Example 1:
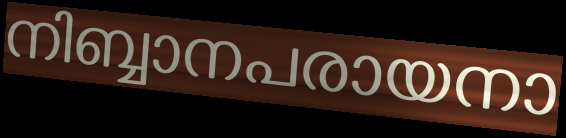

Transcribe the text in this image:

നിബ്ബാനപരായനാ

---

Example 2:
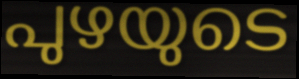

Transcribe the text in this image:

പുഴയുടെ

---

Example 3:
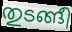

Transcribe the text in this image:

തുടങ്ങീ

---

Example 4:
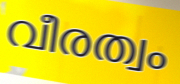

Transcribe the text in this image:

വീരത്വം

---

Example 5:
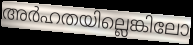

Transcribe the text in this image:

അർഹതയില്ലെങ്കിലോ